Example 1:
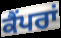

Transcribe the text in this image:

ਕੈਂਪਰਾਂ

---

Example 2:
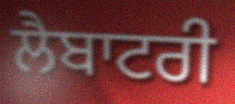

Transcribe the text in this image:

ਲੈਬਾਟਰੀ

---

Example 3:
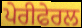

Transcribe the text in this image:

ਪੇਰੀਫੇਰਲ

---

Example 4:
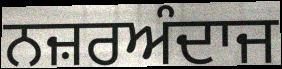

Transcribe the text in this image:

ਨਜ਼ਰਅੰਦਾਜ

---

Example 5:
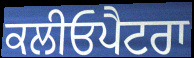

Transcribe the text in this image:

ਕਲੀਓਪੈਟਰਾ